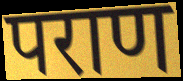
पराण